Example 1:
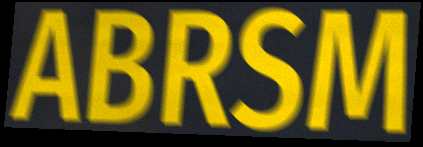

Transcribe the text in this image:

ABRSM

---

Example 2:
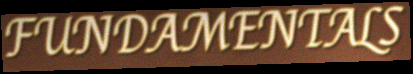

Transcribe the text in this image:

FUNDAMENTALS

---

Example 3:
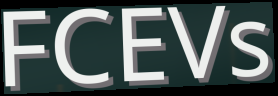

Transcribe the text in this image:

FCEVs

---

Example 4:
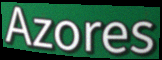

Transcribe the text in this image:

Azores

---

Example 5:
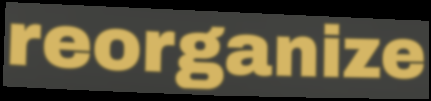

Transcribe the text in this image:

reorganize